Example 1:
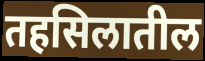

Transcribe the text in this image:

तहसिलातील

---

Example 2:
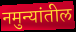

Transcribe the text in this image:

नमुन्यांतील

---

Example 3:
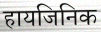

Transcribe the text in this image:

हायजिनिक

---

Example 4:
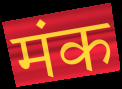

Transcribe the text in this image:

मंक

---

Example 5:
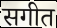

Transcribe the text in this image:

सगीत